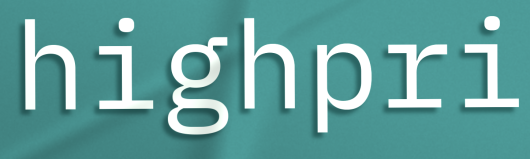
highpri